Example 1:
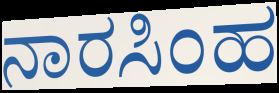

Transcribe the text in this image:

ನಾರಸಿಂಹ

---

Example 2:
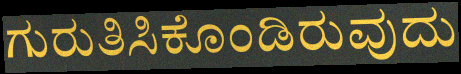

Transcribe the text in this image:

ಗುರುತಿಸಿಕೊಂಡಿರುವುದು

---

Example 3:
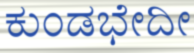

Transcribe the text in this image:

ಕುಂಡಭೇದೀ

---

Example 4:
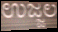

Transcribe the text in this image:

ಉಜ್ಜಲ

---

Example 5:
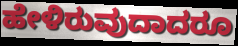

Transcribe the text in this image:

ಹೇಳಿರುವುದಾದರೂ